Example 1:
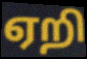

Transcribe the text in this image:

ஏறி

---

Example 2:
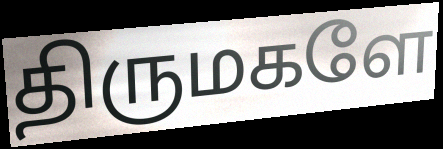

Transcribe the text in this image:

திருமகளே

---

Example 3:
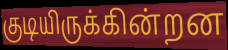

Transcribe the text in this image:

குடியிருக்கின்றன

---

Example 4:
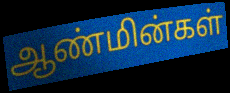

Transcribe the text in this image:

ஆண்மின்கள்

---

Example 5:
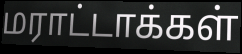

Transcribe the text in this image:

மராட்டாக்கள்